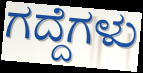
ಗದ್ದೆಗಳು